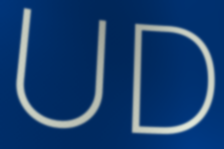
UD